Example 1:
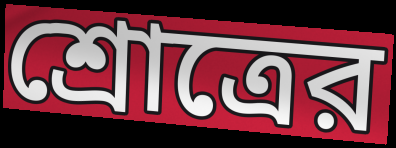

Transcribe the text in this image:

শ্রোত্রের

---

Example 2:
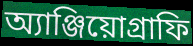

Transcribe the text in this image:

অ্যাঞ্জিয়োগ্রাফি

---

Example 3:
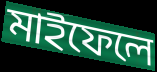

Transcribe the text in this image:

মাইফেলে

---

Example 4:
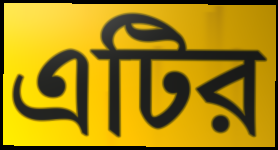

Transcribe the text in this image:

এটির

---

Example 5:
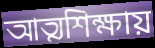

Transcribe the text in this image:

আত্মশিক্ষায়